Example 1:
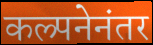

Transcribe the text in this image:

कल्पनेनंतर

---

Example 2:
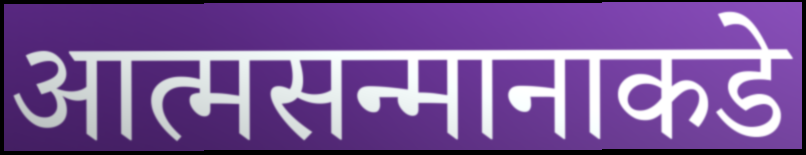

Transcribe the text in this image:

आत्मसन्मानाकडे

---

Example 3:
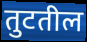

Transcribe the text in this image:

तुटतील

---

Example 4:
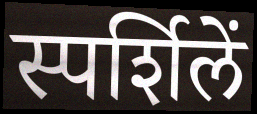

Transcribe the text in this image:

स्पर्शिलें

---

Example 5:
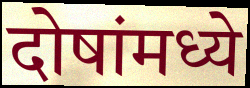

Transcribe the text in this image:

दोषांमध्ये